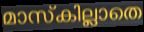
മാസ്‌കില്ലാതെ